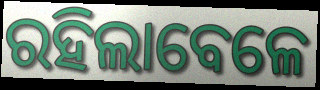
ରହିଲାବେଳେ